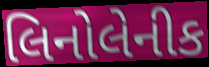
લિનોલેનીક